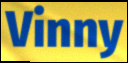
Vinny